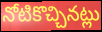
నోటికొచ్చినట్లు